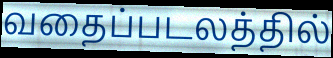
வதைப்படலத்தில்